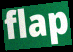
flap